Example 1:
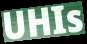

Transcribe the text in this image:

UHIs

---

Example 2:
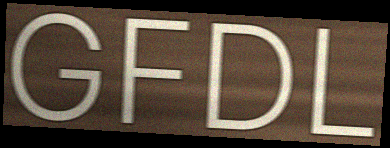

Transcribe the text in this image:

GFDL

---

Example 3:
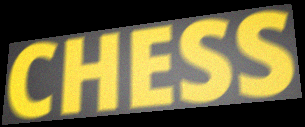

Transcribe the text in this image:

CHESS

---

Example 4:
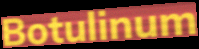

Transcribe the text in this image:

Botulinum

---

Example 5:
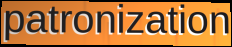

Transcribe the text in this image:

patronization